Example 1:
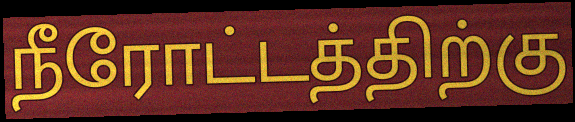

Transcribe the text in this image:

நீரோட்டத்திற்கு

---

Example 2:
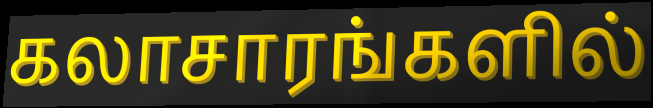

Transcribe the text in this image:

கலாசாரங்களில்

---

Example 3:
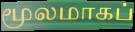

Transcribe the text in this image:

மூலமாகப்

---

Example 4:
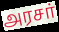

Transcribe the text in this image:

அரசர்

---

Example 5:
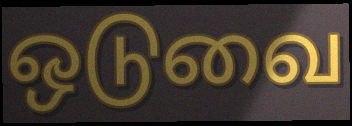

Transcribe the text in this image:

ஒடுவை